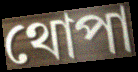
থোপা